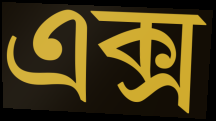
এক্স